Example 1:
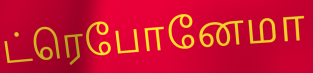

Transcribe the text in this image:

ட்ரெபோனேமா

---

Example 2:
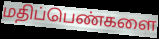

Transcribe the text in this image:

மதிப்பெண்களை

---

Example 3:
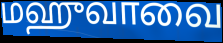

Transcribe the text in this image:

மஹுவாவை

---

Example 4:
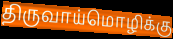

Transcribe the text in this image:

திருவாய்மொழிக்கு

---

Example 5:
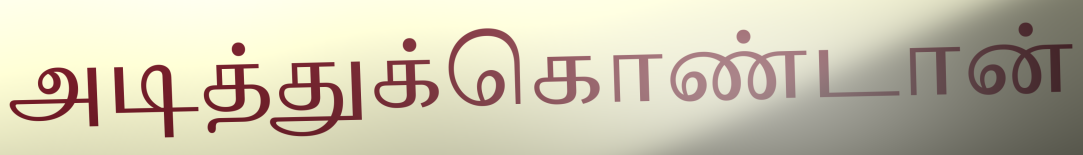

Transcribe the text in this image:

அடித்துக்கொண்டான்